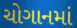
ચોગાનમાં